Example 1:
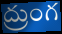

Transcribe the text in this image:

ద్రుంగ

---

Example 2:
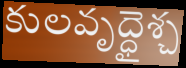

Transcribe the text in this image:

కులవృద్ధైశ్చ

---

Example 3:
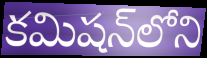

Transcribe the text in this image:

కమిషన్‌లోని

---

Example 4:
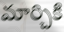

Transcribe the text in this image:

మార్చికి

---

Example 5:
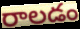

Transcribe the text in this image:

రాలడం